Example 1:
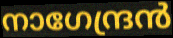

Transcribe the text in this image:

നാഗേന്ദ്രൻ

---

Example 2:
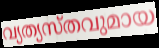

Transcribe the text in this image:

വ്യത്യസ്തവുമായ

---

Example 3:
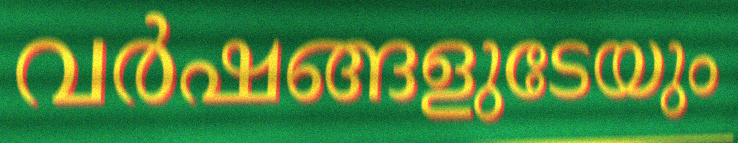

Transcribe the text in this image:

വർഷങ്ങളുടേയും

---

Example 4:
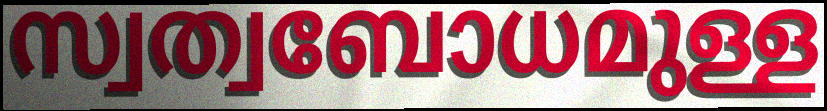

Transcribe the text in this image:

സ്വത്വബോധമുള്ള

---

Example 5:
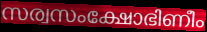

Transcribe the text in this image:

സര്വസംക്ഷോഭിണീം